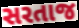
સરતાજ